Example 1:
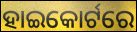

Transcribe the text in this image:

ହାଇକୋର୍ଟରେ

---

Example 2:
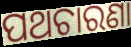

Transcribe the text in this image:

ପଥଚାରଣା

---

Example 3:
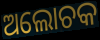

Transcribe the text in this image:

ଅଲୋଚକ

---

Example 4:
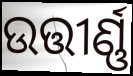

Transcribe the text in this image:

ଉତ୍ତୀର୍ଣ୍ଣ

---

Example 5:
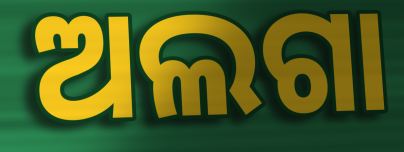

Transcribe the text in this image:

ଅଲଗା